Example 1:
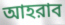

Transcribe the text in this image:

আহরাব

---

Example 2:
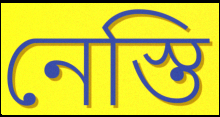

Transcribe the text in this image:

নেস্তি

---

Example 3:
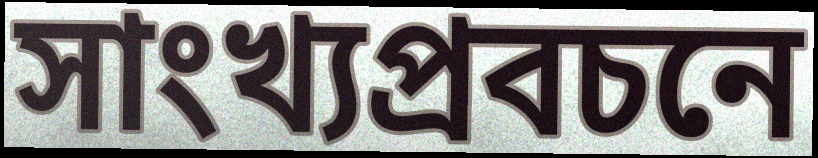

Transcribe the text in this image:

সাংখ্যপ্রবচনে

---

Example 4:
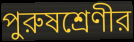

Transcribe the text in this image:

পুরুষশ্রেণীর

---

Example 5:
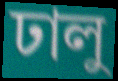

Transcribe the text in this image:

ঢালু